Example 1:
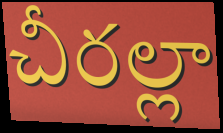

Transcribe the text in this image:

చీరల్లా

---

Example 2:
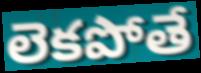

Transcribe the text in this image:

లెకపోతే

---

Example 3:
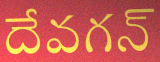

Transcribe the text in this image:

దేవగన్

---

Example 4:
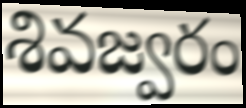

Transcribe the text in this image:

శివజ్వరం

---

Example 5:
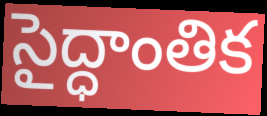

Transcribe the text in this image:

సైద్ధాంతిక